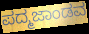
ಪದ್ಮಜಾಂಡವ